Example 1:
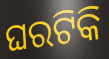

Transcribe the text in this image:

ଘରଟିକି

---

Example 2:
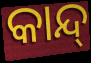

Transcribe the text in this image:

କାନ୍ଦ୍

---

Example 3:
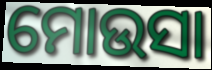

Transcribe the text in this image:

ମୋଉସା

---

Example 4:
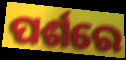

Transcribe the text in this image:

ପର୍ଶରେ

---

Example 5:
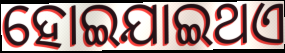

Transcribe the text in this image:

ହୋଇଯାଇଥଏ